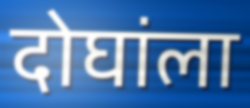
दोघांला